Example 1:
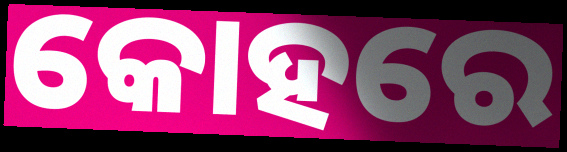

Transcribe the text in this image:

କୋହରେ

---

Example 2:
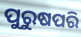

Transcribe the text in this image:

ପୁରୁଷପରି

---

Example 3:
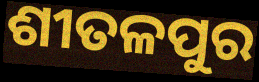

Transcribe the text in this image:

ଶୀତଳପୁର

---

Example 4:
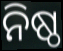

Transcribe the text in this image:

ନିଷ୍ଠ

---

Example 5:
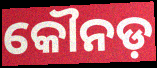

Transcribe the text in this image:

କୌନଡ଼